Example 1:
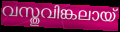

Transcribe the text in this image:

വസ്തുവിങ്കലായ്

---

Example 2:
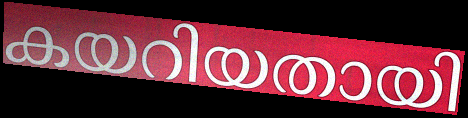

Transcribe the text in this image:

കയറിയതായി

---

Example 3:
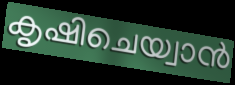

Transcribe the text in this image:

കൃഷിചെയ്വാൻ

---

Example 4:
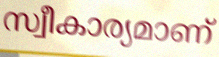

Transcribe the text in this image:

സ്വീകാര്യമാണ്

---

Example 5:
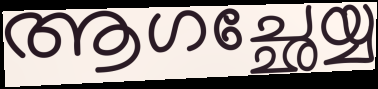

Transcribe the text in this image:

ആഗച്ഛേയ്യ